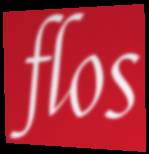
flos